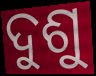
ଦୁଶୁ